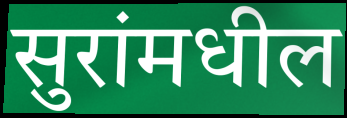
सुरांमधील